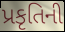
પ્રકૃતિની